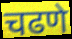
चढणे